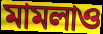
মামলাও